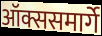
ऑक्ससमार्गे